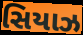
સિયાઝ